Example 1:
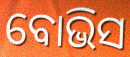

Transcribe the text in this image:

ବୋଭିସ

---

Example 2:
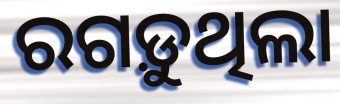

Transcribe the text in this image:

ରଗଡ଼ୁଥିଲା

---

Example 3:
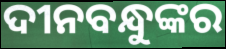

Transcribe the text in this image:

ଦୀନବନ୍ଧୁଙ୍କର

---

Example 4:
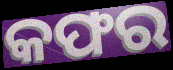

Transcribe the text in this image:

କଫର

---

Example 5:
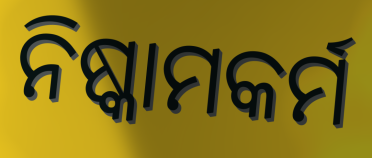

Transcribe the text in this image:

ନିଷ୍କାମକର୍ମ